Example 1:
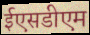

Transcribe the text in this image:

ईएसडीएम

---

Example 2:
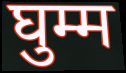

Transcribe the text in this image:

घुम्म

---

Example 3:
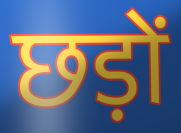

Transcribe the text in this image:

छड़ों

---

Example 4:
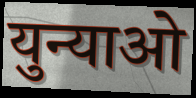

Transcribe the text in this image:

युन्याओ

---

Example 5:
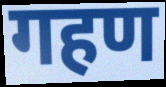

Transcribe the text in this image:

गहण